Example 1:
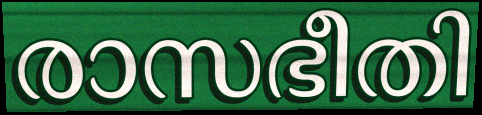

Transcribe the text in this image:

രാസഭീതി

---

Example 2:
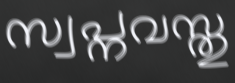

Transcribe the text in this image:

സ്വപ്നവസ്തു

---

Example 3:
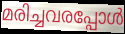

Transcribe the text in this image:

മരിച്ചവരപ്പോൾ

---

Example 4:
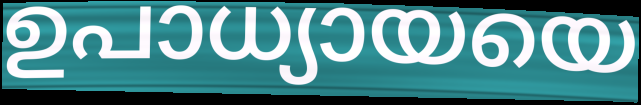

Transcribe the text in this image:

ഉപാധ്യായയെ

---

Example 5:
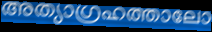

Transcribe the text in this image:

അത്യാഗ്രഹത്താലോ